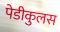
पेडीकुलस